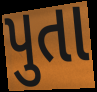
પુતા